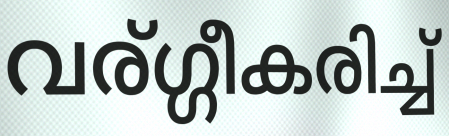
വര്ഗ്ഗീകരിച്ച്